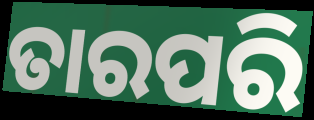
ତାରପରି